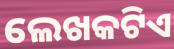
ଲେଖକଟିଏ